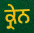
ਕ੍ਰੇਨ